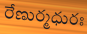
రేణుర్మధురః